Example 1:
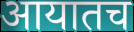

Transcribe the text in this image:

आयातच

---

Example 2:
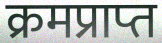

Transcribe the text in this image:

क्रमप्राप्‍त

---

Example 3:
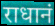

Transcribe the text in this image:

राधानं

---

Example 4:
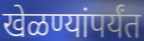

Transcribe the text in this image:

खेळण्यांपर्यंत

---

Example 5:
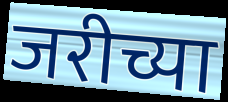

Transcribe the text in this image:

जरीच्या